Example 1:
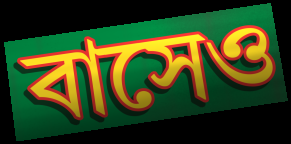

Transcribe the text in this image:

বাসেও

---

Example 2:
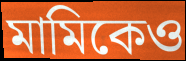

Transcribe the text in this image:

মামিকেও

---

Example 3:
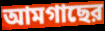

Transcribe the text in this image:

আমগাছের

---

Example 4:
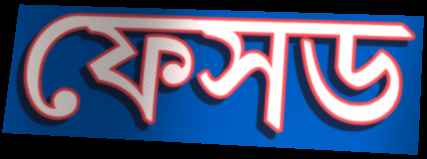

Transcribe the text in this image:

ফেসড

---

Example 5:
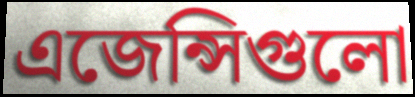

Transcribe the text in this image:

এজেন্সিগুলো